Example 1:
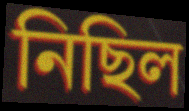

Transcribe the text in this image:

নিছিল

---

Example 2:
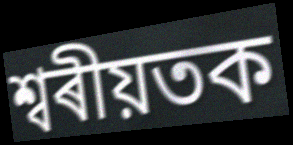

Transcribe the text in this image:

শ্বৰীয়তক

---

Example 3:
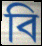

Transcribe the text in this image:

বি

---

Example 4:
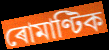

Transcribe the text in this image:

ৰোমাণ্টিক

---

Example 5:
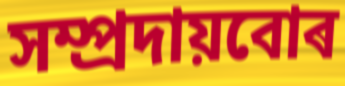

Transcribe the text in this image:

সম্প্ৰদায়বোৰ